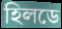
হিলডে